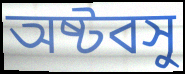
অষ্টবসু